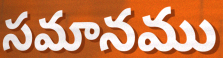
సమానము